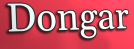
Dongar